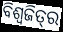
ବିଶ୍ୱଜିତ୍‌ର